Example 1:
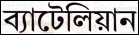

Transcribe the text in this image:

ব্যাটেলিয়ান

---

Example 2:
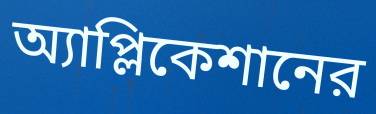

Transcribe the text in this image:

অ্যাপ্লিকেশানের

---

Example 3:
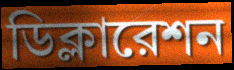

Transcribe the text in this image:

ডিক্লারেশন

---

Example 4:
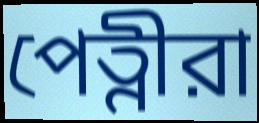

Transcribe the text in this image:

পেত্নীরা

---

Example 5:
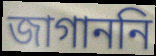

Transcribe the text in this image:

জাগাননি